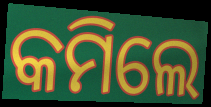
କମିଲେ